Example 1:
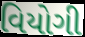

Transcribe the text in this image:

વિયોગી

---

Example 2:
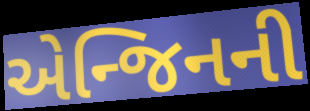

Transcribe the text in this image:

એન્જિનની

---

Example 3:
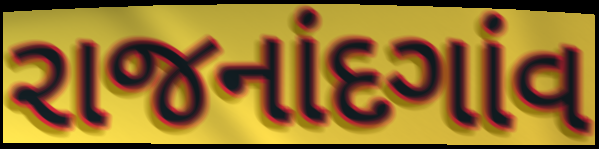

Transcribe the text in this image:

રાજનાંદગાંવ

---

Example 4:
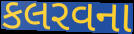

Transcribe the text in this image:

કલરવના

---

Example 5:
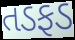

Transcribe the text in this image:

તડફડ